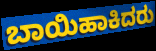
ಬಾಯಿಹಾಕಿದರು